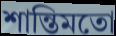
শান্তিমতো